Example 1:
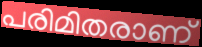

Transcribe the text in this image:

പരിമിതരാണ്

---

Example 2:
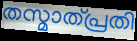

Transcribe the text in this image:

തസ്മാത്പ്രതി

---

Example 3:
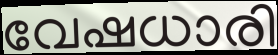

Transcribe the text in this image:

വേഷധാരി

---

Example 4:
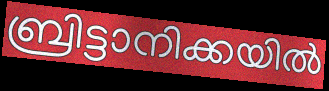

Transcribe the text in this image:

ബ്രിട്ടാനിക്കയിൽ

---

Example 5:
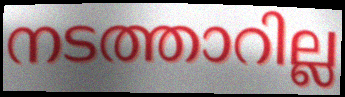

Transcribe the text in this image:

നടത്താറില്ല